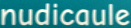
nudicaule